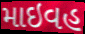
માઇવહ